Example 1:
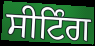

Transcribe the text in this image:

ਸੀਟਿੰਗ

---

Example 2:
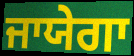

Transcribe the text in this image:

ਜਾਯੇਗਾ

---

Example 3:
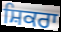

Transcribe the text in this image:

ਸ਼ਿਕਰਾ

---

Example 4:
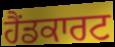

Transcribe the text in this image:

ਹੈਂਡਕਾਰਟ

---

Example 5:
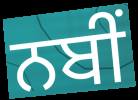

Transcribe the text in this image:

ਨਬੀਂ